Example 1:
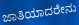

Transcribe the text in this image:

ಜಾತಿಯಾದರೇನು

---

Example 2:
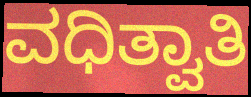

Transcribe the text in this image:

ವಧಿತ್ವಾತಿ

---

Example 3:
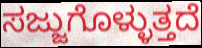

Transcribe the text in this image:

ಸಜ್ಜುಗೊಳ್ಳುತ್ತದೆ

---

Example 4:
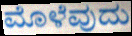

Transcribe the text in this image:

ಮೊಳೆವುದು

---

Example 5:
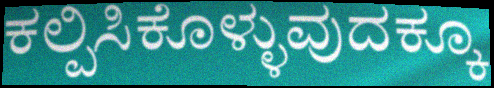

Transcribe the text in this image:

ಕಲ್ಪಿಸಿಕೊಳ್ಳುವುದಕ್ಕೂ